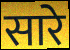
सारे